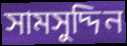
সামসুদ্দিন